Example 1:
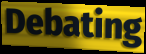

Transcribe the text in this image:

Debating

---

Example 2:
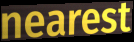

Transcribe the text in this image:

nearest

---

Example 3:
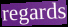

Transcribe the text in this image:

regards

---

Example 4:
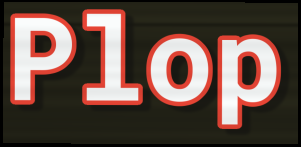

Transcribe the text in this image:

Plop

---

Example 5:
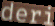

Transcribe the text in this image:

deri